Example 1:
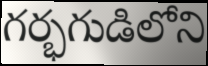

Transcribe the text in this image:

గర్భగుడిలోని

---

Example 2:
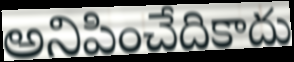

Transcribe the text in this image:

అనిపించేదికాదు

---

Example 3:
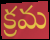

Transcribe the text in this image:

క్రమ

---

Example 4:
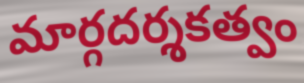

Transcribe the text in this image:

మార్గదర్శకత్వం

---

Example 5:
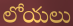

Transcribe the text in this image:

లోయలు